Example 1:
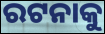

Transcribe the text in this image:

ରଟନାକୁ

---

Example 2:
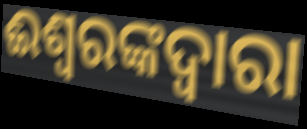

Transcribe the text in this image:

ଈଶ୍ୱରଙ୍କଦ୍ୱାରା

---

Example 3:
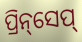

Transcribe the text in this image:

ପ୍ରିନ୍‌ସେପ୍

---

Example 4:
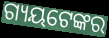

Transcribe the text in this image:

ଗ୍ୟୟଟେଙ୍କର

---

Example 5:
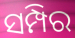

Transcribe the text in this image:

ସମ୍ପିର